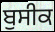
ਬੁਸੀਕ